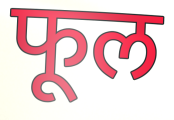
फूल